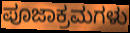
ಪೂಜಾಕ್ರಮಗಳು